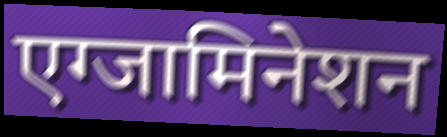
एग्‍जामिनेशन